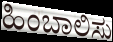
ಹಿಂಬಾಲಿಸು